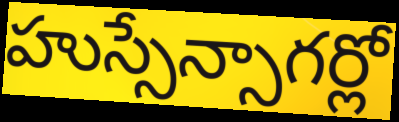
హుస్సేన్సాగర్లో